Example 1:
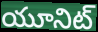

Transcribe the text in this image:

యూనిట్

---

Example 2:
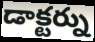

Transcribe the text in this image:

డాక్టర్ను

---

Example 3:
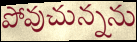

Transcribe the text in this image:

పోవుచున్నను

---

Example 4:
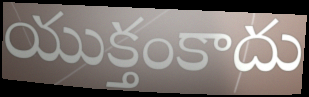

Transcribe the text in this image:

యుక్తంకాదు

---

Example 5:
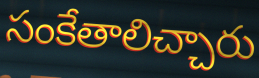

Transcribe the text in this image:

సంకేతాలిచ్చారు